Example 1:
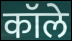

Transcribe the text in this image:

कॉले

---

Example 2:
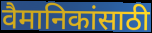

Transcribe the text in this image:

वैमानिकांसाठी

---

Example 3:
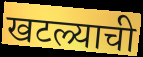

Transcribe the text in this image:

खटल्याची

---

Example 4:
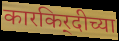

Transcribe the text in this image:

कारकिर्दीच्या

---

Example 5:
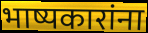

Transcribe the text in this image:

भाष्यकारांना